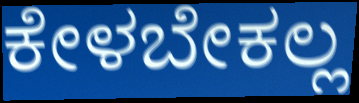
ಕೇಳಬೇಕಲ್ಲ